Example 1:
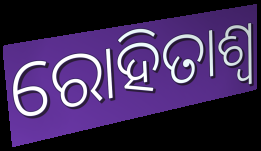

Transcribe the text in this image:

ରୋହିତାଶ୍ୱ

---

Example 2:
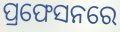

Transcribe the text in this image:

ପ୍ରଫେସନରେ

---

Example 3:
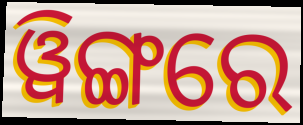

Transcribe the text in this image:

ୱିଙ୍ଗରେ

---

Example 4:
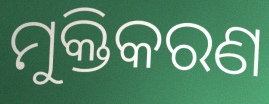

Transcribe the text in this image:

ମୁକ୍ତିକରଣ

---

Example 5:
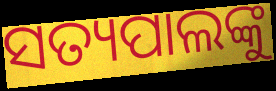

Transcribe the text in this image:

ସତ୍ୟପାଲଙ୍କୁ